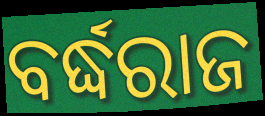
ବର୍ଦ୍ଧରାଜ